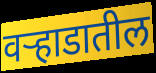
वर्‍हाडातील